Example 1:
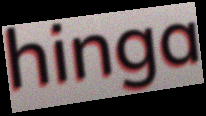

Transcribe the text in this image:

hinga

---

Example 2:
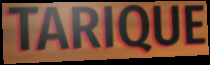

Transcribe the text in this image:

TARIQUE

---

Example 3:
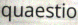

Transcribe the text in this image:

quaestio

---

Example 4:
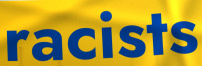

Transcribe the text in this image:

racists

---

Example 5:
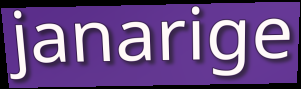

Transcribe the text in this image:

janarige